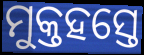
ମୁକ୍ତହସ୍ତେ